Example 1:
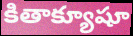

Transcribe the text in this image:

కితాక్యూషూ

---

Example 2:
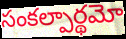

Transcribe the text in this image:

సంకల్పార్థమో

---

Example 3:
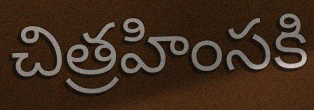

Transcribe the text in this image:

చిత్రహింసకి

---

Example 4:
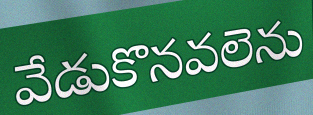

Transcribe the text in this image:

వేడుకొనవలెను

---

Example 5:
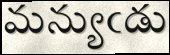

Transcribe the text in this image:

మన్యుఁడు